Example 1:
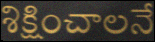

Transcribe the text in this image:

శిక్షించాలనే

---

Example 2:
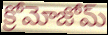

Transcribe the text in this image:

క్రోమోజోమ్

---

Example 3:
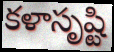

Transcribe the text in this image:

కళాసృష్టి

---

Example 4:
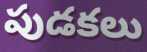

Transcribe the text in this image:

పుడకలు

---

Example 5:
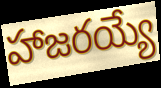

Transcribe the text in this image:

హాజరయ్యే